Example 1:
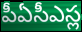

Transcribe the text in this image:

పీఏసీఎస్ల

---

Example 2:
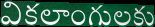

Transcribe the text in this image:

వికలాంగులకు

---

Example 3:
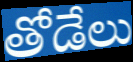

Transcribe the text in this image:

తోడేలు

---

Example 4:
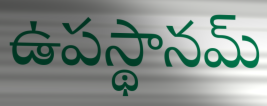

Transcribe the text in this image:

ఉపస్థానమ్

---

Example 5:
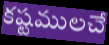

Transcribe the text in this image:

కష్టములచే